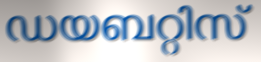
ഡയബറ്റിസ്